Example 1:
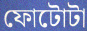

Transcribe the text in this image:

ফোটোটা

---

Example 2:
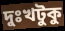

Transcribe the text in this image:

দুঃখটুকু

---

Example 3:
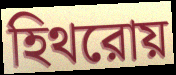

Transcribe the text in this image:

হিথরোয়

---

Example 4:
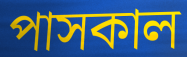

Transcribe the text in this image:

পাসকাল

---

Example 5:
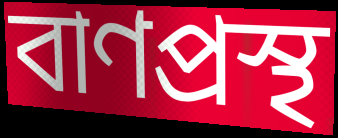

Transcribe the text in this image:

বাণপ্রস্থ